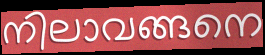
നിലാവങ്ങനെ